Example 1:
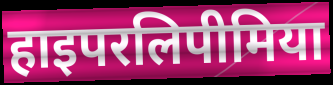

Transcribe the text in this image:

हाइपरलिपीमिया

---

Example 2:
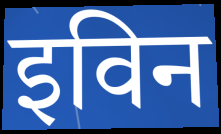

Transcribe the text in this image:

इविन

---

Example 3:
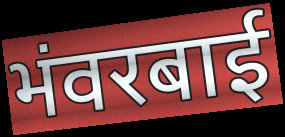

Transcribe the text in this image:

भंवरबाई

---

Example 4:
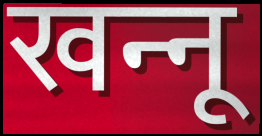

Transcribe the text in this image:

खन्नू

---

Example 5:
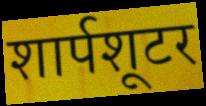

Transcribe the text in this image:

शार्पशूटर